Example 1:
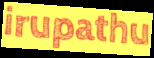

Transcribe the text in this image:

irupathu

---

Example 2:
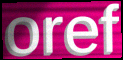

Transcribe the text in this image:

oref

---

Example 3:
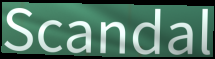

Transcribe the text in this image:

Scandal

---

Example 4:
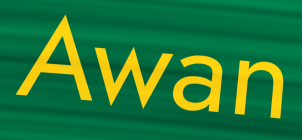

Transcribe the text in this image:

Awan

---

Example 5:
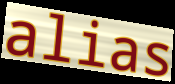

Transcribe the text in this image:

alias